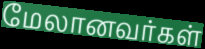
மேலானவர்கள்